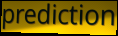
prediction